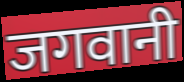
जगवानी